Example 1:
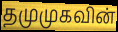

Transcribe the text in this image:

தமுமுகவின்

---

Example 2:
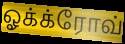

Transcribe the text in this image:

ஓக்க்ரோவ்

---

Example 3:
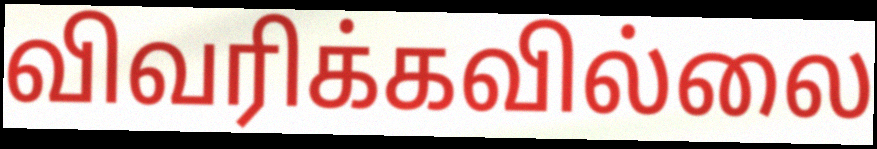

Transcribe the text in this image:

விவரிக்கவில்லை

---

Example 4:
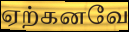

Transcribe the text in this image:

ஏற்கனவே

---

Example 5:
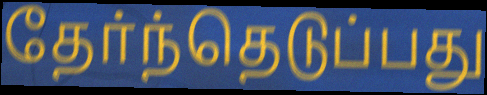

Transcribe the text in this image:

தேர்ந்தெடுப்பது